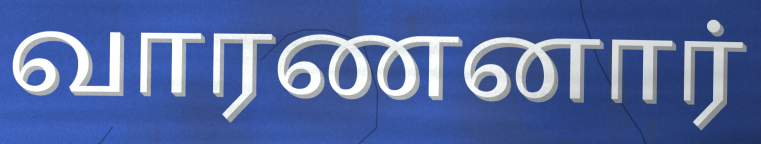
வாரணனார்